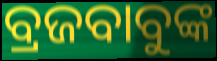
ବ୍ରଜବାବୁଙ୍କ